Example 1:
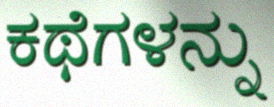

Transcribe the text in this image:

ಕಥೆಗಳನ್ನು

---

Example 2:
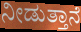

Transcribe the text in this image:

ನೀಡುತ್ತಾನೆ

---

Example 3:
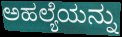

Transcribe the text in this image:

ಅಹಲ್ಯೆಯನ್ನು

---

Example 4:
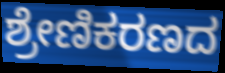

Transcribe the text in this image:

ಶ್ರೇಣಿಕರಣದ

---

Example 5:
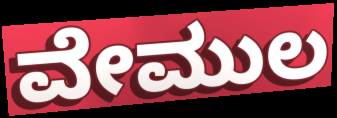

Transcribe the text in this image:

ವೇಮುಲ